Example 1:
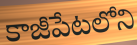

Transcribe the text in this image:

కాజీపేటలోని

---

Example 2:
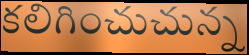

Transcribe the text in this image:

కలిగించుచున్న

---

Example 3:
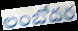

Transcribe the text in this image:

లంబోదర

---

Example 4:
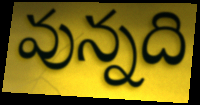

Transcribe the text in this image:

వున్నది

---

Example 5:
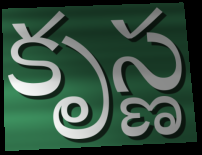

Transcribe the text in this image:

కృస్ణ